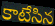
కాటేసిన